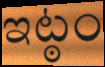
ఇట్ఠం